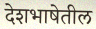
देशभाषेतील